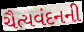
ચૈત્યવંદનની